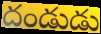
దండుడు